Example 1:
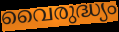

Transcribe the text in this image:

വൈരുദ്ധ്യം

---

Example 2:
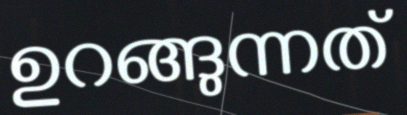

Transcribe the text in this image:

ഉറങ്ങുന്നത്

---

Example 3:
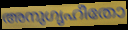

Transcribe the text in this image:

അനുഗൃഹീതോ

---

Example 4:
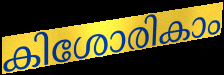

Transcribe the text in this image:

കിശോരികാം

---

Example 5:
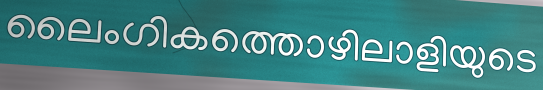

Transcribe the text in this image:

ലൈംഗികത്തൊഴിലാളിയുടെ